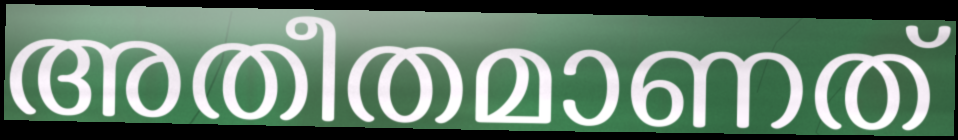
അതീതമാണത്